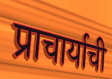
प्राचार्याची